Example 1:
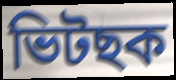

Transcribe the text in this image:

ভিটছক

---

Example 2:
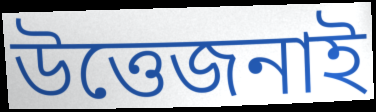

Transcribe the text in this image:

উত্তেজনাই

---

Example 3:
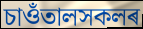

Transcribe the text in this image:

চাওঁতালসকলৰ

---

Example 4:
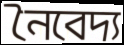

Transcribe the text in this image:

নৈবেদ্য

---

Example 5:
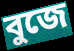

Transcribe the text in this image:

বুজে